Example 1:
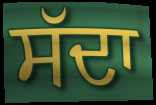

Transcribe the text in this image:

ਸੱਦਾ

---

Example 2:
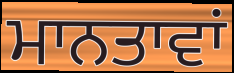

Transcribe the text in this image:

ਮਾਨਤਾਵਾਂ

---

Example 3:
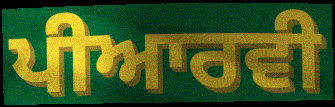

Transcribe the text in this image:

ਪੀਆਰਵੀ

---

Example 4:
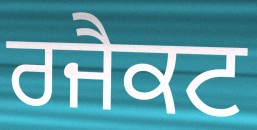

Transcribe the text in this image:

ਰਜੈਕਟ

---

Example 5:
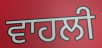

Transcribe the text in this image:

ਵਾਹਲੀ